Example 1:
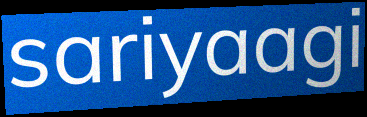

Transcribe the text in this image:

sariyaagi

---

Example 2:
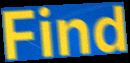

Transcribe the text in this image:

Find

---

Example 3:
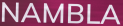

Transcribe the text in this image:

NAMBLA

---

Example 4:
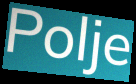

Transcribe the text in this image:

Polje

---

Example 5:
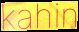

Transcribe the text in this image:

kahin